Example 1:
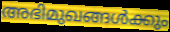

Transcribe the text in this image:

അഭിമുഖങ്ങൾക്കും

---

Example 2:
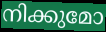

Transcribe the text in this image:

നിക്കുമോ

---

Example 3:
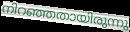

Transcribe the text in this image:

നിറഞ്ഞതായിരുന്നു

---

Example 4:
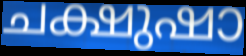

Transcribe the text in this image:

ചക്ഷുഷാ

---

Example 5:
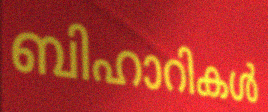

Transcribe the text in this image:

ബിഹാറികൾ